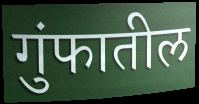
गुंफातील